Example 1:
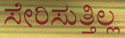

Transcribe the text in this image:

ಸೇರಿಸುತ್ತಿಲ್ಲ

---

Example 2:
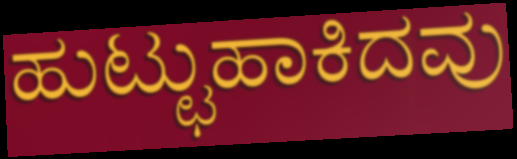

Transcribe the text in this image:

ಹುಟ್ಟುಹಾಕಿದವು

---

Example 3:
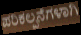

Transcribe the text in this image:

ಪರಿಕಲ್ಪನೆಗಳಾಗಿ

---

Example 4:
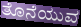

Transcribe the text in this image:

ತೊನೆಯುವ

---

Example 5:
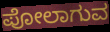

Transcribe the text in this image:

ಪೋಲಾಗುವ